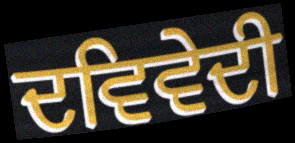
ਦਵਿਵੇਦੀ